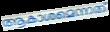
ആകാശമെന്നത്